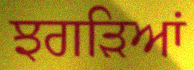
ਝਗੜਿਆਂ